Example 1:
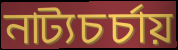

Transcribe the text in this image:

নাট্যচর্চায়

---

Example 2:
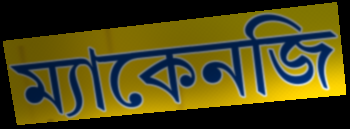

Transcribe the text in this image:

ম্যাকেনজি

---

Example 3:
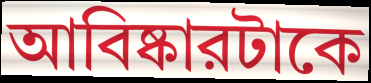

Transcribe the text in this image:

আবিষ্কারটাকে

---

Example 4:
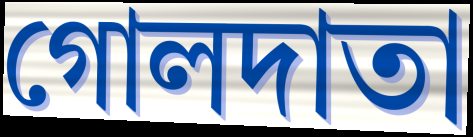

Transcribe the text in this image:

গোলদাতা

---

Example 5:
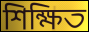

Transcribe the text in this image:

শিক্ষিত